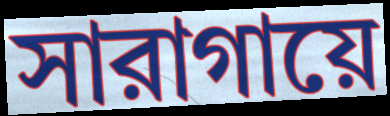
সারাগায়ে